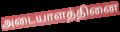
அடையாளத்தினை